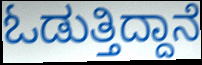
ಓಡುತ್ತಿದ್ದಾನೆ